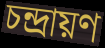
চন্দ্রায়ণ